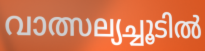
വാത്സല്യച്ചൂടിൽ